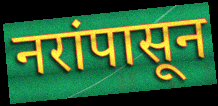
नरांपासून